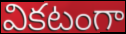
వికటంగా